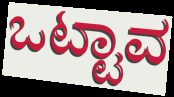
ಒಟ್ಟಾವ